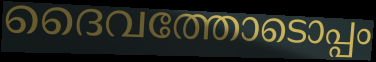
ദൈവത്തോടൊപ്പം